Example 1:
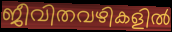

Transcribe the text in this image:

ജീവിതവഴികളിൽ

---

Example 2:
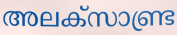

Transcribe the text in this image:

അലക്സാണ്ട്ര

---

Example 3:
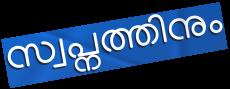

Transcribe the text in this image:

സ്വപ്നത്തിനും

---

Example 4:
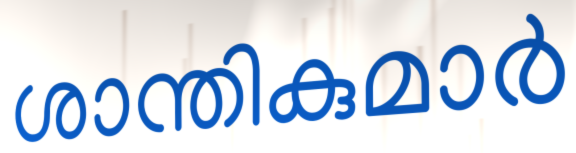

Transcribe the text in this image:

ശാന്തികുമാർ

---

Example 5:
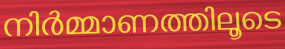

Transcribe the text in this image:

നിർമ്മാണത്തിലൂടെ